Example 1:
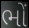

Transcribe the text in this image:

ભોં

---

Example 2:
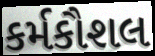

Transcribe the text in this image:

કર્મકૌશલ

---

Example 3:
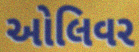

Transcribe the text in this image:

ઓલિવર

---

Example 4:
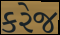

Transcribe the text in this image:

કરેજ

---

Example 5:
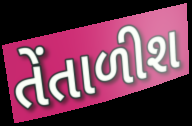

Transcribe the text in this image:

તેંતાળીશ